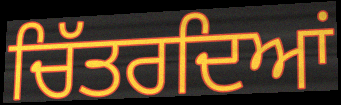
ਚਿੱਤਰਦਿਆਂ